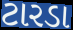
ટારડા